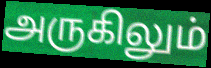
அருகிலும்